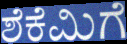
ಶೆಕೆಮಿಗೆ